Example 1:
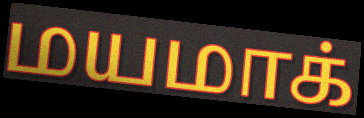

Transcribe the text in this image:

மயமாக்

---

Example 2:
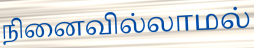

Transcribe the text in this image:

நினைவில்லாமல்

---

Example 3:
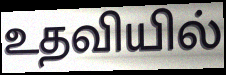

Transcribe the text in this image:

உதவியில்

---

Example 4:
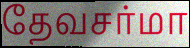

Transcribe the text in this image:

தேவசர்மா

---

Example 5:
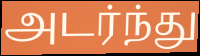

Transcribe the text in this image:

அடர்ந்து